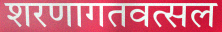
शरणागतवत्सल